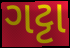
ગટ્ટા